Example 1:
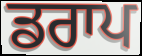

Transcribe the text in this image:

ਡਰਾਪ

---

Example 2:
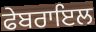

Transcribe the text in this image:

ਫੇਬਰਾਇਲ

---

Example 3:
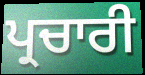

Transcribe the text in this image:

ਪ੍ਰਚਾਰੀ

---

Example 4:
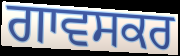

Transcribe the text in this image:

ਗਾਵਸਕਰ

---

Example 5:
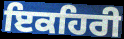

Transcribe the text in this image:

ਇਕਹਿਰੀ